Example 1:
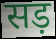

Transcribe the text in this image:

सड़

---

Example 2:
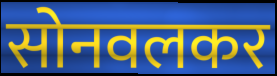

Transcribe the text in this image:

सोनवलकर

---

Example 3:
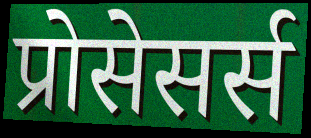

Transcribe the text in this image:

प्रोसेसर्स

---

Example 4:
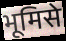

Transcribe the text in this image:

भूमिसे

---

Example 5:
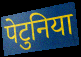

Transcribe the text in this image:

पेटुनिया